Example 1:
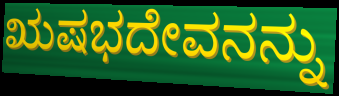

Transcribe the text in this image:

ಋಷಭದೇವನನ್ನು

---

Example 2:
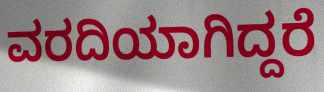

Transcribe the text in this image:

ವರದಿಯಾಗಿದ್ದರೆ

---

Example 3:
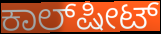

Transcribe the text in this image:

ಕಾಲ್‌ಷೀಟ್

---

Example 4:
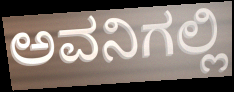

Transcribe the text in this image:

ಅವನಿಗಲ್ಲಿ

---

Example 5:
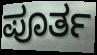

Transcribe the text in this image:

ಪೂರ್ತ